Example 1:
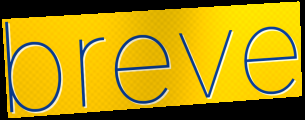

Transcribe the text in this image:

breve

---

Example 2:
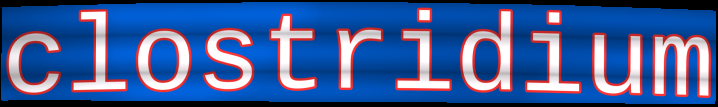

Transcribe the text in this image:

clostridium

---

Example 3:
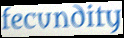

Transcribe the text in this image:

fecundity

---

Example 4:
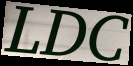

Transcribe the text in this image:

LDC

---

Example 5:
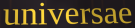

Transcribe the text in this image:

universae